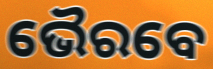
ଭୈରବେ